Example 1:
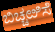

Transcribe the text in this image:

ಬಿಚ್ಚೞಿಸೆ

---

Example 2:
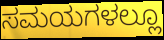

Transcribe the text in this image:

ಸಮಯಗಳಲ್ಲೂ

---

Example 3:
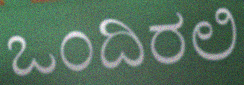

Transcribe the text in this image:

ಒಂದಿರಲಿ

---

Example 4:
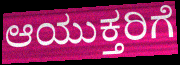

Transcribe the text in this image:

ಆಯುಕ್ತರಿಗೆ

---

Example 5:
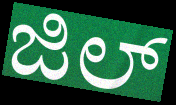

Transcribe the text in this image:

ಜಿಲ್